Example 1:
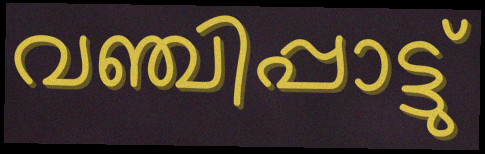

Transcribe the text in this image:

വഞ്ചിപ്പാട്ടു്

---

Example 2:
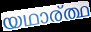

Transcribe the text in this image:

യഥാര്ത്ഥ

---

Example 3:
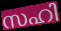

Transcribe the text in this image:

സഹി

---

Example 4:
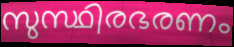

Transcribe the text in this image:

സുസ്ഥിരഭരണം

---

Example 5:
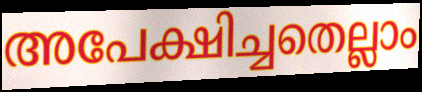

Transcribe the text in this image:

അപേക്ഷിച്ചതെല്ലാം